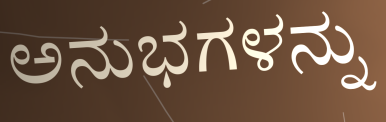
ಅನುಭಗಳನ್ನು